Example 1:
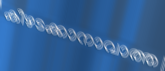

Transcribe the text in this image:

കീഴടക്കാനാവാത്ത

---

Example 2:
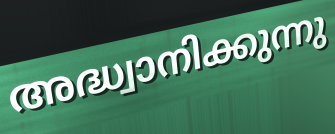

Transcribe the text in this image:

അദ്ധ്വാനിക്കുന്നു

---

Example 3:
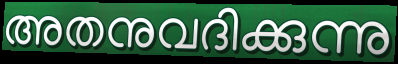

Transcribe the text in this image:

അതനുവദിക്കുന്നു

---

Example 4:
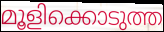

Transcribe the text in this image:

മൂളിക്കൊടുത്ത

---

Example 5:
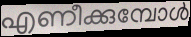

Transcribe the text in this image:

എണീക്കുമ്പോൾ